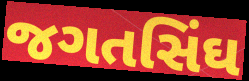
જગતસિંઘ